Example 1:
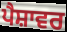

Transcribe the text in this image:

ਪੈਸ਼ਾਵਰ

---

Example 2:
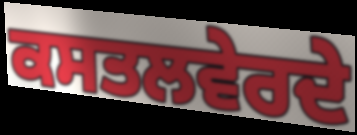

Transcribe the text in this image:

ਕਸਤਲਵੇਰਦੇ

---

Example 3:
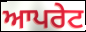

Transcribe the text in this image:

ਆਪਰੇਟ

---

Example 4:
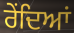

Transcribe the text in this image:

ਰੇਂਦਿਆਂ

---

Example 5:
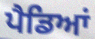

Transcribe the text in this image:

ਪੈਡਿਆਂ